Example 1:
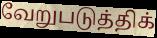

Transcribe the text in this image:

வேறுபடுத்திக்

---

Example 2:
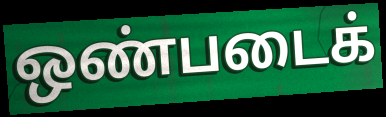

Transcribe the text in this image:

ஒண்படைக்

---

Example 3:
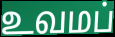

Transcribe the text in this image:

உவமப்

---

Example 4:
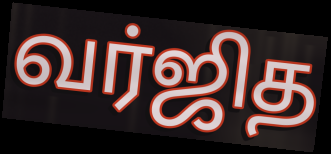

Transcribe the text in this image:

வர்ஜித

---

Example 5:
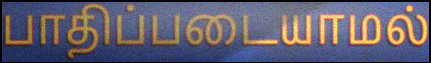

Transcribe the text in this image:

பாதிப்படையாமல்